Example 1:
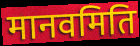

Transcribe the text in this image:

मानवमिति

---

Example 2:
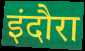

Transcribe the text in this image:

इंदौरा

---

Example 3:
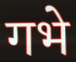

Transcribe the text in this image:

गभे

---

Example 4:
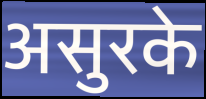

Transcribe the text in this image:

असुरके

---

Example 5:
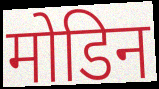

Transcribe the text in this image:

मोडिन